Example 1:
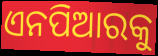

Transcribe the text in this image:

ଏନପିଆରକୁ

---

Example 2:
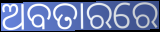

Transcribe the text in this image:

ଅବତାରରେ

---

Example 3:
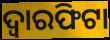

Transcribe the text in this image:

ଦ୍ୱାରଫିଟା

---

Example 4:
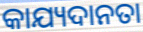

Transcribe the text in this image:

କାଯ୍ୟଦାନତା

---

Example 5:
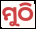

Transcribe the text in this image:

ମୁଠି